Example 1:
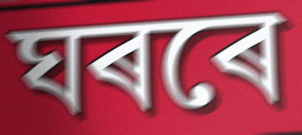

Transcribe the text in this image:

ঘৰৰে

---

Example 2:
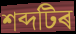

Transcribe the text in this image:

শব্দটিৰ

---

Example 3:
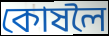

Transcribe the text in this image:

কোষলৈ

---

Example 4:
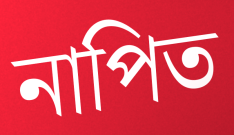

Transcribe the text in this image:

নাপিত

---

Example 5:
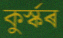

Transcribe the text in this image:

কুৰ্স্কৰ